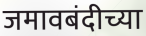
जमावबंदीच्या